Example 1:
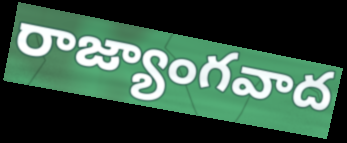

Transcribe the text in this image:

రాజ్యాంగవాద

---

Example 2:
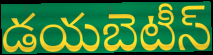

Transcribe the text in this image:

డయబెటీస్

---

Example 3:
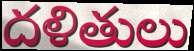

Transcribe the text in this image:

దళితులు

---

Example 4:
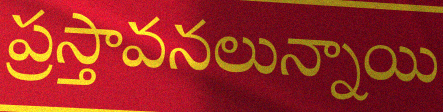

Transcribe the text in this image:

ప్రస్తావనలున్నాయి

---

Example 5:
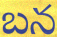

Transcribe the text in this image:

బన